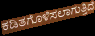
ಕಡಿತಗೊಳಿಸಲಾಗುತ್ತಿದೆ